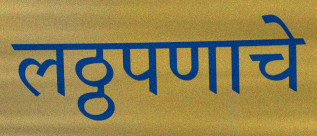
लठ्ठपणाचे